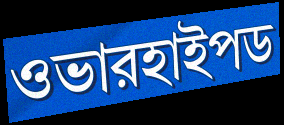
ওভারহাইপড